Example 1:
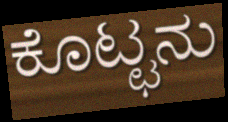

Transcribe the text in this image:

ಕೊಟ್ಟನು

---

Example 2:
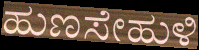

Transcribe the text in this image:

ಹುಣಸೇಹುಳಿ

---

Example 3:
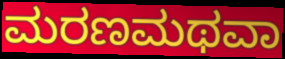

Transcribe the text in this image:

ಮರಣಮಥವಾ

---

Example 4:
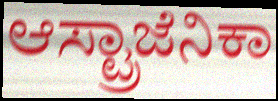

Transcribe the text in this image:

ಆಸ್ಟ್ರಾಜೆನಿಕಾ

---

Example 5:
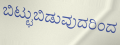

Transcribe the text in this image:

ಬಿಟ್ಟುಬಿಡುವುದರಿಂದ